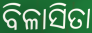
ବିଳାସିତା